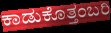
ಕಾಡುಕೊತ್ತಂಬರಿ